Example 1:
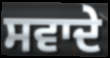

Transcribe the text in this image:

ਸਵਾਦੇ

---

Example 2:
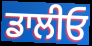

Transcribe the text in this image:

ਡਾਲੀਓ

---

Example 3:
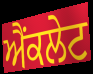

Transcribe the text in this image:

ਐਂਕਲੇਟ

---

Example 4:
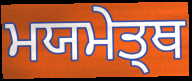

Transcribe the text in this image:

ਮਯਮੇਤ੍ਥ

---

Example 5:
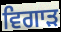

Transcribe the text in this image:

ਵਿਗਾਡ਼